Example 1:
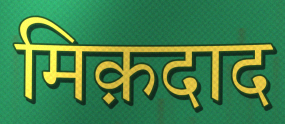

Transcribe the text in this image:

मिक़दाद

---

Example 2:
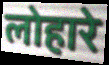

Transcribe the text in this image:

लोहारे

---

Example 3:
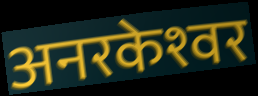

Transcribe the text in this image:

अनरकेश्वर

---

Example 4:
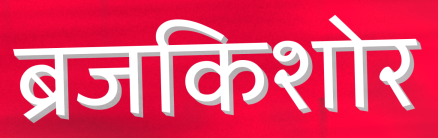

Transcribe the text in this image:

ब्रजकिशोर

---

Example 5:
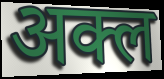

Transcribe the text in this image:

अक्ल